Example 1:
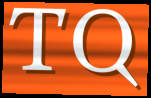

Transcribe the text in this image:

TQ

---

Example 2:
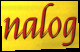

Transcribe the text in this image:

nalog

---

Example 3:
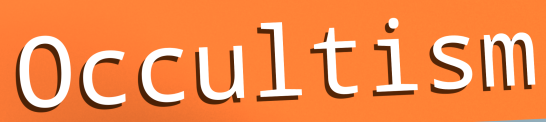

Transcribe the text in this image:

Occultism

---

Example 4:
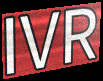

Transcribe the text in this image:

IVR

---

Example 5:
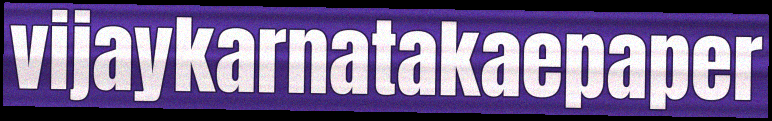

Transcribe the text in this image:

vijaykarnatakaepaper